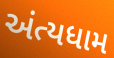
અંત્યધામ